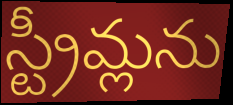
స్ట్రీమ్లను